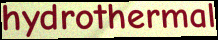
hydrothermal